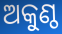
ଅକୁଣ୍ଠ